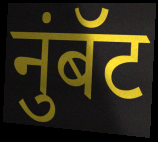
नुंबॅट